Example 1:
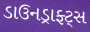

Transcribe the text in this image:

ડાઉનડ્રાફ્ટ્સ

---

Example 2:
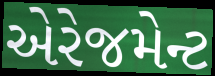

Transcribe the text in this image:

એરેજમેન્ટ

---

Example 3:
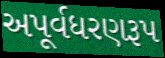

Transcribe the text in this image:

અપૂર્વધરણરૂપ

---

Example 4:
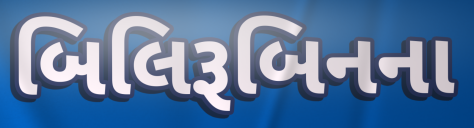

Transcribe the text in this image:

બિલિરૂબિનના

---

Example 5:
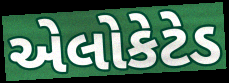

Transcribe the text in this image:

એલોકેટેડ